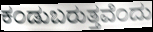
ಕಂಡುಬರುತ್ತವೆಂದು